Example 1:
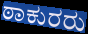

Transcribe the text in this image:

ಠಾಕುರರು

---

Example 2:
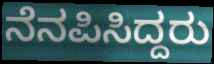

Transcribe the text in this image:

ನೆನಪಿಸಿದ್ದರು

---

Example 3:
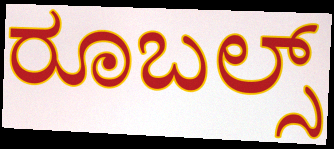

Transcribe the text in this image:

ರೂಬಲ್ಸ್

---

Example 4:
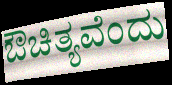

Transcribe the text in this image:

ಔಚಿತ್ಯವೆಂದು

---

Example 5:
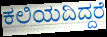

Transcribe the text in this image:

ಕಲಿಯದಿದ್ದರೆ